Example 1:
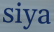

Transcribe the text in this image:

siya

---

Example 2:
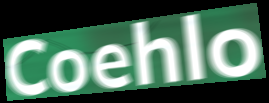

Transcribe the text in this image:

Coehlo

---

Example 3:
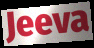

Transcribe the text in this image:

Jeeva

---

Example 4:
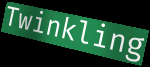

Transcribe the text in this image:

Twinkling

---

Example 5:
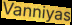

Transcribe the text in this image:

Vanniyas